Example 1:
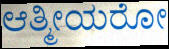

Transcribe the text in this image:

ಆತ್ಮೀಯರೋ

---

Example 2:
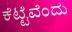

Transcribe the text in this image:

ಕೆಟ್ಟೆವೆಂದು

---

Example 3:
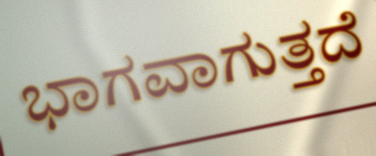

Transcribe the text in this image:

ಭಾಗವಾಗುತ್ತದೆ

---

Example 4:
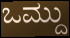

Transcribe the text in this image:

ಒಮ್ದು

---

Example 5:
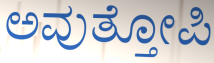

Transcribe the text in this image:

ಅವುತ್ತೋಪಿ